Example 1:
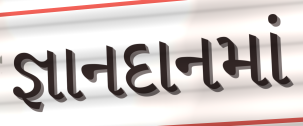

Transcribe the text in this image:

જ્ઞાનદાનમાં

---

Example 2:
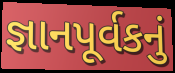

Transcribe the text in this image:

જ્ઞાનપૂર્વકનું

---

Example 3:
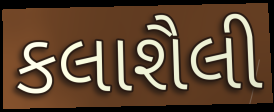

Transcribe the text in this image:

કલાશૈલી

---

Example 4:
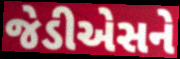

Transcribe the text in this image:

જેડીએસને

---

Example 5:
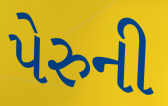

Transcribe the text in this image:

પેરુની